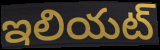
ఇలియట్